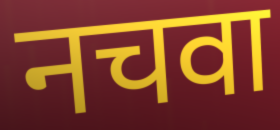
नचवा